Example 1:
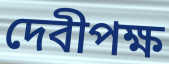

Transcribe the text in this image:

দেবীপক্ষ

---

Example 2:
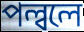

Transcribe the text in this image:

পল্বলে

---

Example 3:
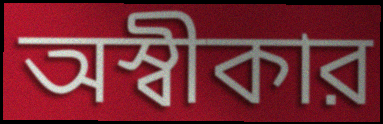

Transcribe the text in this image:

অস্বীকার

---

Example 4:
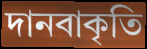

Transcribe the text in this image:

দানবাকৃতি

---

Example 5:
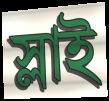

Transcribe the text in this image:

স্লাই